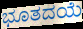
ಭೂತದಯೆ